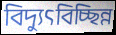
বিদ্যুৎবিচ্ছিন্ন